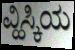
ವ್ಹಿಸ್ಕಿಯ